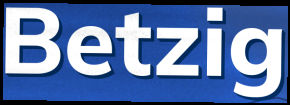
Betzig